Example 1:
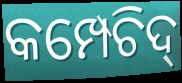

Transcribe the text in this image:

କମ୍ପେଚିଦ୍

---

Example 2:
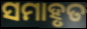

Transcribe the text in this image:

ସମାହୃତ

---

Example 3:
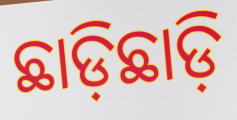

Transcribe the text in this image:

ଛାଡ଼ିଛାଡ଼ି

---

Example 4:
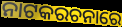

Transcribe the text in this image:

ନାଟକରଚନାରେ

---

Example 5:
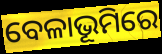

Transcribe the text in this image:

ବେଳାଭୂମିରେ